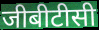
जीबीटीसी